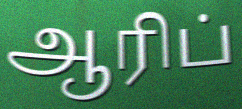
ஆரிப்